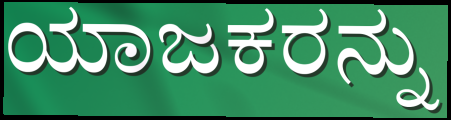
ಯಾಜಕರನ್ನು